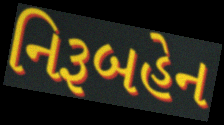
નિરૂબહેન